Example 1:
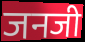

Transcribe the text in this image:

जनजी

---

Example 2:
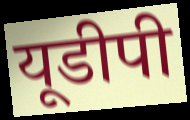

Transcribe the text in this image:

यूडीपी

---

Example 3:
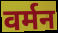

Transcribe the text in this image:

वर्मन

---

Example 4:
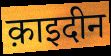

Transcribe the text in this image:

क़ाइदीन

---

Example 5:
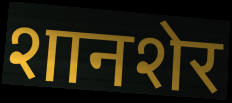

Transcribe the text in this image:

शानशेर